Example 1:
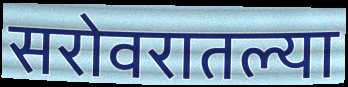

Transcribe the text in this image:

सरोवरातल्या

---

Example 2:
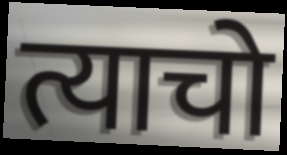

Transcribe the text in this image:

त्याचो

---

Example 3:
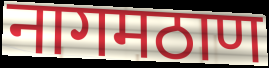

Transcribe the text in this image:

नागमठाण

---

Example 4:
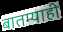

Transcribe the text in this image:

बातम्याही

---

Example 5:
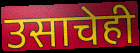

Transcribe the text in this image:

उसाचेही